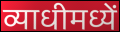
व्याधीमध्यें